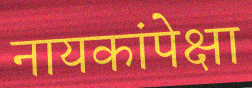
नायकांपेक्षा